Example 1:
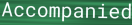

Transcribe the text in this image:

Accompanied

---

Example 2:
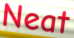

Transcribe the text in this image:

Neat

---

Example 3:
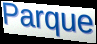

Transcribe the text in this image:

Parque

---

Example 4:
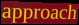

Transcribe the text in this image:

approach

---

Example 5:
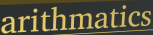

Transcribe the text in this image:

arithmatics